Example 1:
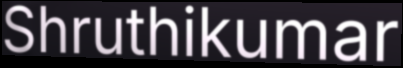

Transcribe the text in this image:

Shruthikumar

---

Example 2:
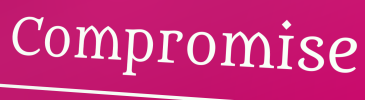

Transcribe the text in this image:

Compromise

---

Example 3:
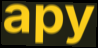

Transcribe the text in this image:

apy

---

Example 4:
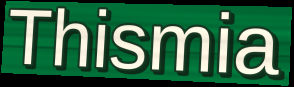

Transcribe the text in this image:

Thismia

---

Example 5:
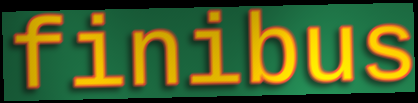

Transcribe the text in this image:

finibus